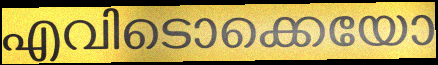
എവിടൊക്കെയോ